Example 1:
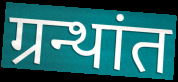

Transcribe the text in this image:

ग्रन्थांत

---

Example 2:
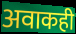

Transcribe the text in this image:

अवाकही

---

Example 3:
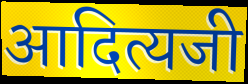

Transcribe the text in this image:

आदित्यजी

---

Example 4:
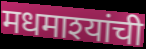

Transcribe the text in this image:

मधमाश्‍यांची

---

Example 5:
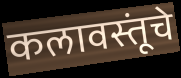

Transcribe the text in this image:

कलावस्तूंचे